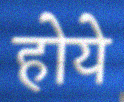
होये